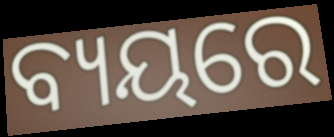
ବ୍ୟୟରେ